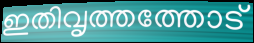
ഇതിവൃത്തത്തോട്